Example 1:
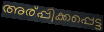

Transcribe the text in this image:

അര്പ്പിക്കപ്പെട്ട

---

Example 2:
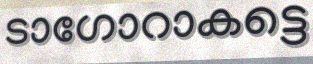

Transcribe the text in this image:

ടാഗോറാകട്ടെ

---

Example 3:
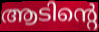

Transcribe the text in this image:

ആടിന്റെ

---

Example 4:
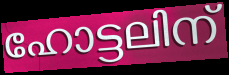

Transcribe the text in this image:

ഹോട്ടലിന്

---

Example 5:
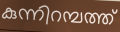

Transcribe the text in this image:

കുന്നിറമ്പത്ത്